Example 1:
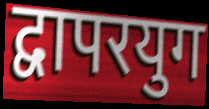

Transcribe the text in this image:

द्वापरयुग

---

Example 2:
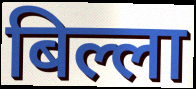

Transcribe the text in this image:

बिल्ला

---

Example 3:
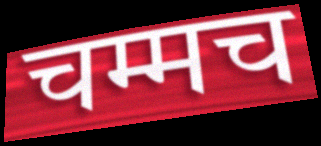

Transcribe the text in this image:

चम्मच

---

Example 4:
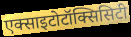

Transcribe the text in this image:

एक्साइटोटॉक्सिसिटी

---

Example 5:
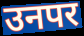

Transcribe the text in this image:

उनपर